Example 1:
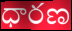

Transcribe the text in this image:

ధారణ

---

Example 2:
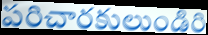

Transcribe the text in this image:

పరిచారకులుండిరి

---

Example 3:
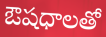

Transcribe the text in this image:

ఔషధాలతో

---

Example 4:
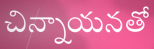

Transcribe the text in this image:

చిన్నాయనతో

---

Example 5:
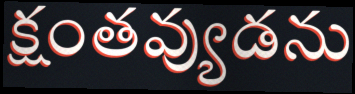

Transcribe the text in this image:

క్షంతవ్యుడను